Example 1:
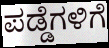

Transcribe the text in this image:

ಪಡ್ಡೆಗಳಿಗೆ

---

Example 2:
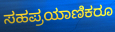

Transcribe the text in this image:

ಸಹಪ್ರಯಾಣಿಕರೂ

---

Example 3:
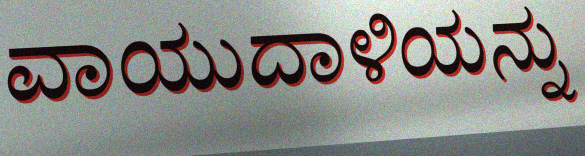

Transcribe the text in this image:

ವಾಯುದಾಳಿಯನ್ನು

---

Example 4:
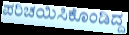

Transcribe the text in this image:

ಪರಿಚಯಿಸಿಕೊಂಡಿದ್ದ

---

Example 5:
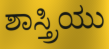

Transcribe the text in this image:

ಶಾಸ್ತ್ರಿಯು